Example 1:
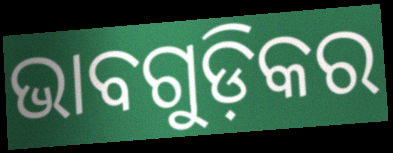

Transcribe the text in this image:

ଭାବଗୁଡ଼ିକର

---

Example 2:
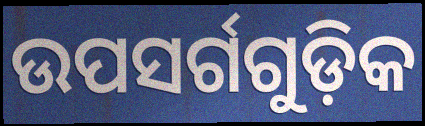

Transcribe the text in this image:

ଉପସର୍ଗଗୁଡ଼ିକ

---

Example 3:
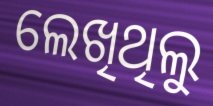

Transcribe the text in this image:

ଲେଖିଥିଲୁ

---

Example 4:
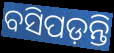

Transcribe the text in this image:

ବସିପଡ଼ନ୍ତି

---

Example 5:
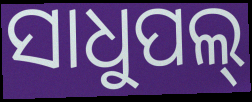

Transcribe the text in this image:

ସାଧୁପଲ୍